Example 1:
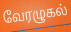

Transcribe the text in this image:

வேரழுகல்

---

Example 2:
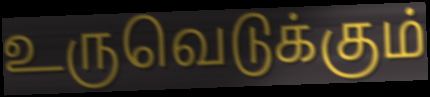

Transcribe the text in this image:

உருவெடுக்கும்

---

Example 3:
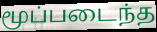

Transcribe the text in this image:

மூப்படைந்த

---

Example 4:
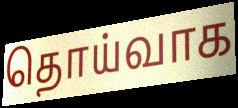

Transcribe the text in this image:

தொய்வாக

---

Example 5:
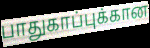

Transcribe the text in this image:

பாதுகாப்புக்கான